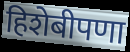
हिशेबीपणा